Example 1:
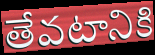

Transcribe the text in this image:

తేవటానికి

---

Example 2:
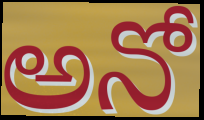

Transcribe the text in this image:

అనో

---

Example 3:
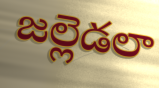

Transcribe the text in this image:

జల్లెడలా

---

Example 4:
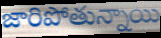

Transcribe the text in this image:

జారిపోతున్నాయి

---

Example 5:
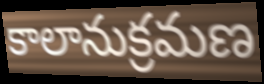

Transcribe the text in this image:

కాలానుక్రమణ